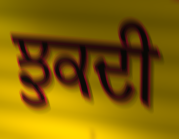
ਝੁਕਦੀ